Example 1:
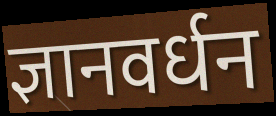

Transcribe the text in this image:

ज्ञानवर्धन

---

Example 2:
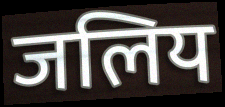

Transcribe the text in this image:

जलिय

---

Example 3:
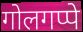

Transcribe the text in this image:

गोलगप्पे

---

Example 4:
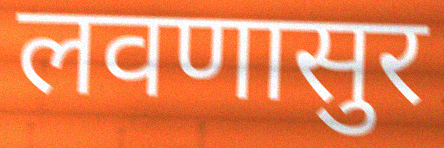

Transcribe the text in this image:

लवणासुर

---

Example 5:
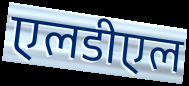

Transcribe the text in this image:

एलडीएल